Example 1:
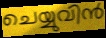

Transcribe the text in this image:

ചെയ്യുവിൻ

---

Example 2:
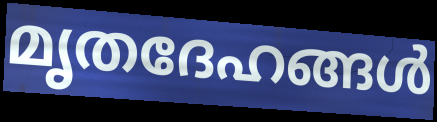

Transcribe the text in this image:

മൃതദേഹങ്ങൾ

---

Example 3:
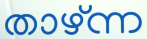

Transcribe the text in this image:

താഴ്ന്ന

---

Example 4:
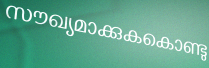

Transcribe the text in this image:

സൗഖ്യമാക്കുകകൊണ്ടു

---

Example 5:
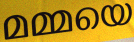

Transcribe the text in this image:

മമ്മയെ